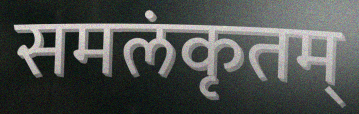
समलंकृतम्